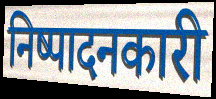
निष्पादनकारी